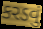
કરડવું